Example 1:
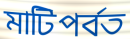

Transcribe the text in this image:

মাটিপৰ্বত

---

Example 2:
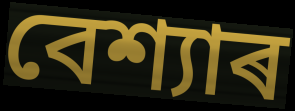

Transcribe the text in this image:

বেশ্যাৰ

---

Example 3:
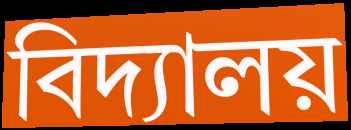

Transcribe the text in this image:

বিদ্যালয়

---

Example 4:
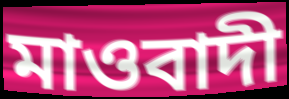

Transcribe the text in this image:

মাওবাদী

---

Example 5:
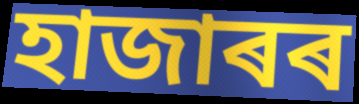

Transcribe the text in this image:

হাজাৰৰ